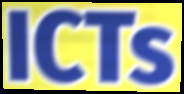
ICTs